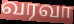
வரவா